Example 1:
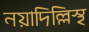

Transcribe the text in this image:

নয়াদিল্লিস্থ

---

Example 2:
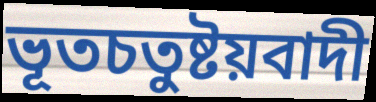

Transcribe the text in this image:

ভূতচতুষ্টয়বাদী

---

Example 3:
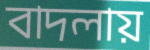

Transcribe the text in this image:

বাদলায়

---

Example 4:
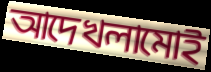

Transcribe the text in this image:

আদেখলামোই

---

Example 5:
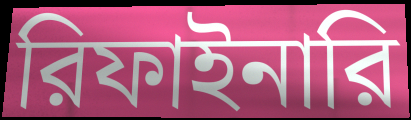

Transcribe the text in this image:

রিফাইনারি